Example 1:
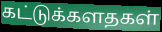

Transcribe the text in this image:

கட்டுக்களதகள்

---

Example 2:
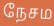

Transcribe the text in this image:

நேசம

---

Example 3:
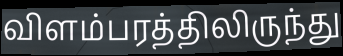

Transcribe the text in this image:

விளம்பரத்திலிருந்து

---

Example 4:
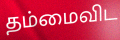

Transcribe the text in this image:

தம்மைவிட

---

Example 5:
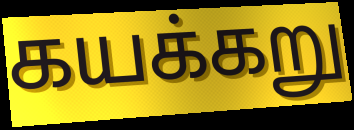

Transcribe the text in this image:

கயக்கறு